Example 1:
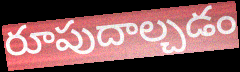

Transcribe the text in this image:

రూపుదాల్చడం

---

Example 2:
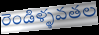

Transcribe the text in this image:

రెండిళ్ళవతల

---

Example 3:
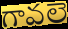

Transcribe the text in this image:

గావలె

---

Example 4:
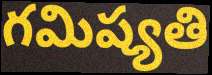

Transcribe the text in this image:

గమిష్యతి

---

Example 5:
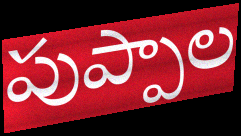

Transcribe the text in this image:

పుప్పాల